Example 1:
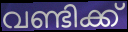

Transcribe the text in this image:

വണ്ടിക്ക്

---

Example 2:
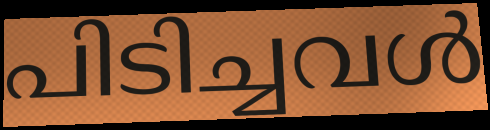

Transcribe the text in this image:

പിടിച്ചവൾ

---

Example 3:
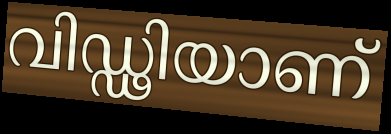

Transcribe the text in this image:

വിഡ്ഢിയാണ്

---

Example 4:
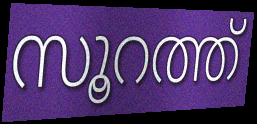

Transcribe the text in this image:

സൂറത്ത്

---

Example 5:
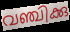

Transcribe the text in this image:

വഞ്ചിക്കു